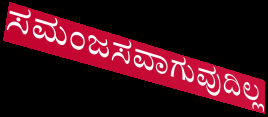
ಸಮಂಜಸವಾಗುವುದಿಲ್ಲ